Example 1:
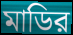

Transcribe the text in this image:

মাডির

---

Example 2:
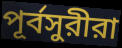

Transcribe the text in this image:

পূর্বসুরীরা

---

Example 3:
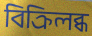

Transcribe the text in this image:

বিক্রিলব্ধ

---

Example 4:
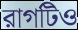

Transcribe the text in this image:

রাগটিও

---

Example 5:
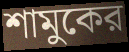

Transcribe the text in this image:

শামুকের